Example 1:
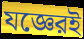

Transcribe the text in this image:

যজ্ঞেরই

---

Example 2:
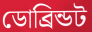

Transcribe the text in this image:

ডোব্রিন্ডট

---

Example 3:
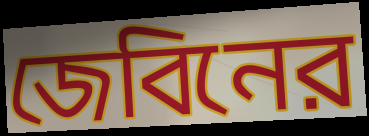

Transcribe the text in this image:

জেবিনের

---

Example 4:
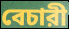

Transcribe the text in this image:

বেচারী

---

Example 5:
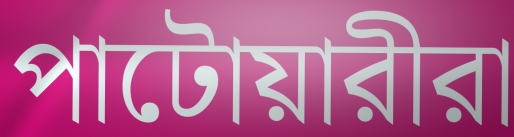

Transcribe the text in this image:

পাটোয়ারীরা